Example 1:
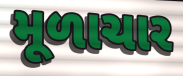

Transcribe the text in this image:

મૂળાચાર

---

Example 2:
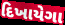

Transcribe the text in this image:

દિખાયેગા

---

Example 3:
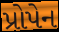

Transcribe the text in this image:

પ્રોપેન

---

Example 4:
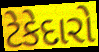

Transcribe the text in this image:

ટેકેદારો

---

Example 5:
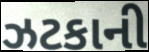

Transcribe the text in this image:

ઝટકાની